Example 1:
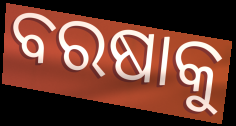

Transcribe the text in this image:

ବରଷାକୁ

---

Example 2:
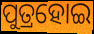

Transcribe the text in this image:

ପୁତ୍ରହୋଇ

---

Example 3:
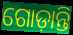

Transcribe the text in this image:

ଗୋଡ଼ାନ୍ତି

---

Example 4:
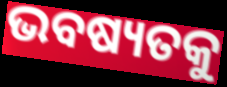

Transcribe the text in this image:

ଭବଷ୍ୟତକୁ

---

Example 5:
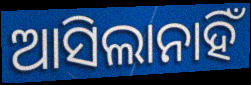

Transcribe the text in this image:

ଆସିଲାନାହିଁ